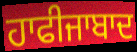
ਹਾਫੀਜਾਬਾਦ